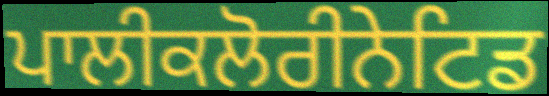
ਪਾਲੀਕਲੋਰੀਨੇਟਿਡ